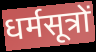
धर्मसूत्रों